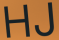
HJ